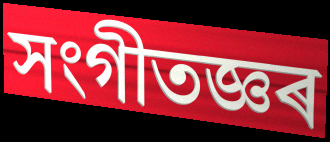
সংগীতজ্ঞৰ